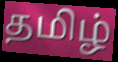
தமிழ்